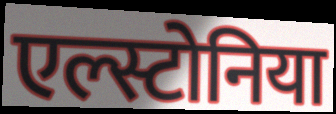
एल्स्टोनिया